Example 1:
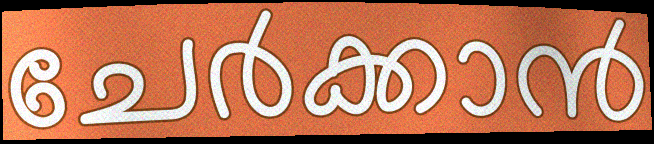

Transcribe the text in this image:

ചേർക്കാൻ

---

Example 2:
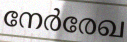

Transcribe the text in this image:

നേർരേഖ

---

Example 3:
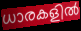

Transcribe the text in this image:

ധാരകളിൽ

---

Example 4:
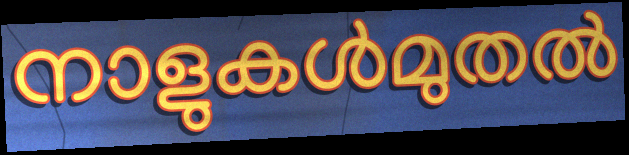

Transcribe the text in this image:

നാളുകൾമുതൽ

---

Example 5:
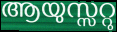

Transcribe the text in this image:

ആയുസ്സറ്റു